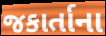
જકાર્તાના